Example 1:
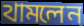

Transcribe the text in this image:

থামলেন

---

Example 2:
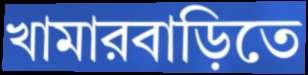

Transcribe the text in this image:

খামারবাড়িতে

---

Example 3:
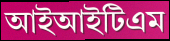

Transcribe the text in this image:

আইআইটিএম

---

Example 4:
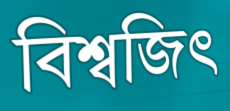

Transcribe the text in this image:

বিশ্বজিৎ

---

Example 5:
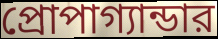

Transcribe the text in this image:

প্রোপাগ্যান্ডার